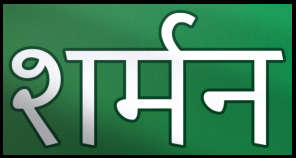
शर्मन